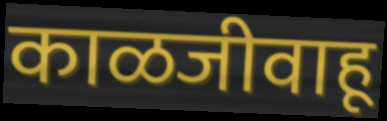
काळजीवाहू